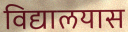
विद्यालयास